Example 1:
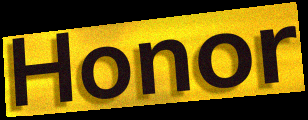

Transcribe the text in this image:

Honor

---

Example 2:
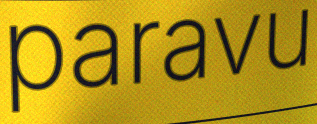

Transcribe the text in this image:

paravu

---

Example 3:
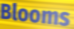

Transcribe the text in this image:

Blooms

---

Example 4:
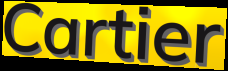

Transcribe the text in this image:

Cartier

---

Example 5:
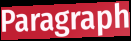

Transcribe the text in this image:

Paragraph